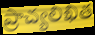
ప్రాచ్యలిఖిత